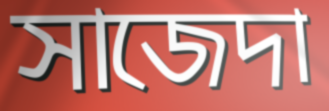
সাজেদা